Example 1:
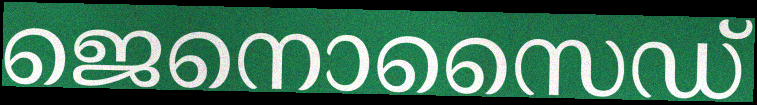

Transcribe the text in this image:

ജെനൊസൈഡ്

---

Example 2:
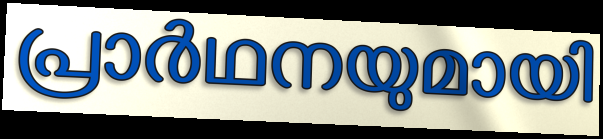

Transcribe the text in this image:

പ്രാർഥനയുമായി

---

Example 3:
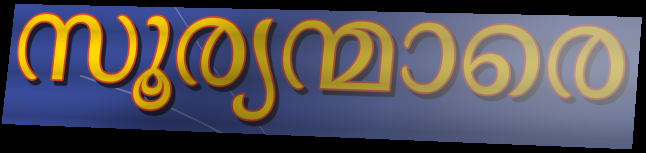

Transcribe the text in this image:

സൂര്യന്മാരെ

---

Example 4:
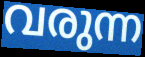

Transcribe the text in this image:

വരുന്ന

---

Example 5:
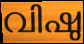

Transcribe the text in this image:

വിഷു